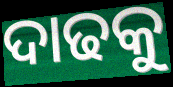
ଦାଢକୁ